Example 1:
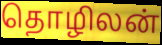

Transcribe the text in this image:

தொழிலன்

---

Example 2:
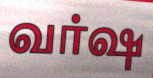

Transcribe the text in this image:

வர்ஷ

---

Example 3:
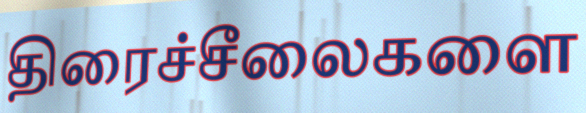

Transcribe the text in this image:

திரைச்சீலைகளை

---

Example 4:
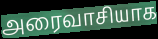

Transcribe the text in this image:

அரைவாசியாக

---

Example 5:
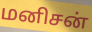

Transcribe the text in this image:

மனிசன்